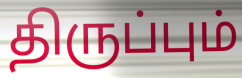
திருப்பும்